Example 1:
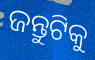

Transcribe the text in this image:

ଜନ୍ତୁଟିକୁ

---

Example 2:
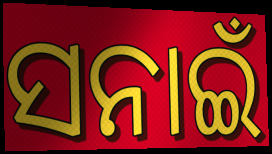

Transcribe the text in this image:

ସନାଇଁ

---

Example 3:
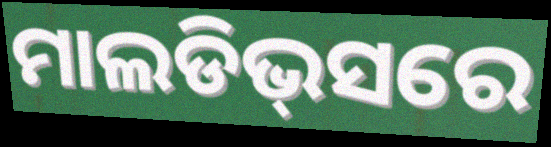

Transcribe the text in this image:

ମାଲଡିଭ୍‌ସରେ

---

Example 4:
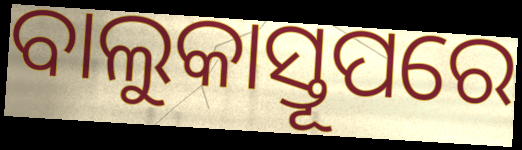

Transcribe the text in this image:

ବାଲୁକାସ୍ତୂପରେ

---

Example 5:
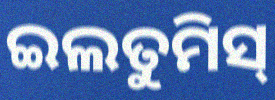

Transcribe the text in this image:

ଇଲତୁମିସ୍